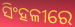
ସିଂହଳୀରେ